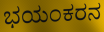
ಭಯಂಕರನ